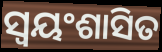
ସ୍ବୟଂଶାସିତ